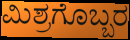
ಮಿಶ್ರಗೊಬ್ಬರ